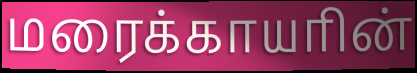
மரைக்காயரின்